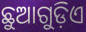
ଛୁଆଗୁଡ଼ିଏ